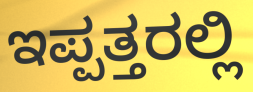
ಇಪ್ಪತ್ತರಲ್ಲಿ